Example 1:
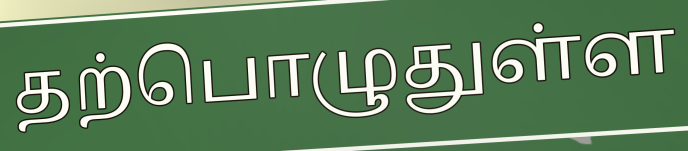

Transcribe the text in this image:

தற்பொழுதுள்ள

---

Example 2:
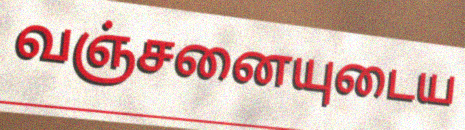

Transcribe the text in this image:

வஞ்சனையுடைய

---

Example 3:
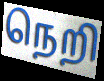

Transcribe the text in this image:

நெறி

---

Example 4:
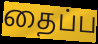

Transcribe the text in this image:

தைப்ப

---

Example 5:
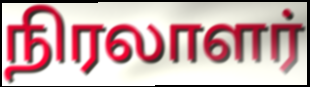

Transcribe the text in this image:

நிரலாளர்